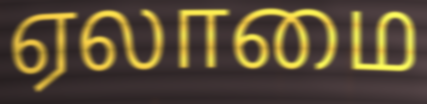
ஏலாமை